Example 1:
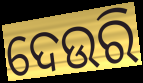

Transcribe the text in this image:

ଦେଉରି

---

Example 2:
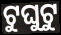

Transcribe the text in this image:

ଟୁଘୁଟୁ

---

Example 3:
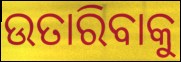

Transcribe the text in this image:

ଉତାରିବାକୁ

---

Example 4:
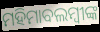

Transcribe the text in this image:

ମହିମାବଲମ୍ବୀଙ୍କ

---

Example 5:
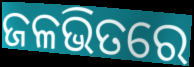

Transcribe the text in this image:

ଜଳଭିତରେ